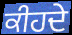
ਕੀਹਦੇ